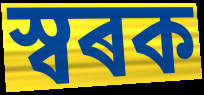
স্বৰক